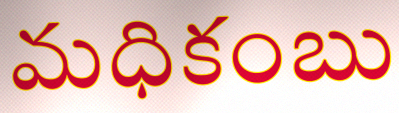
మధికంబు